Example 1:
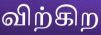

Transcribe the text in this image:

விற்கிற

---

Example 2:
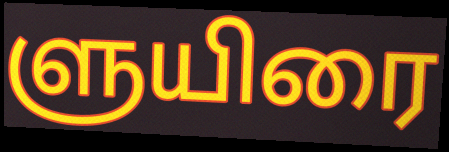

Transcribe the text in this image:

ளுயிரை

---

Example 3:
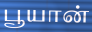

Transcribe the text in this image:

பூயான்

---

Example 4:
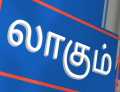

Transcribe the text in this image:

லாகும்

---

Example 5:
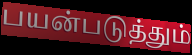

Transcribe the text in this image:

பயன்படுத்தும்